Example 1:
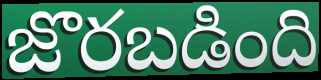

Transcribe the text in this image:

జొరబడింది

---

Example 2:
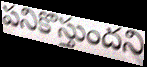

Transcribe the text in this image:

పనికొస్తుందని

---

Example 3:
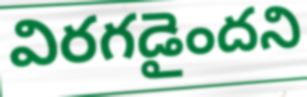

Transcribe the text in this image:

విరగడైందని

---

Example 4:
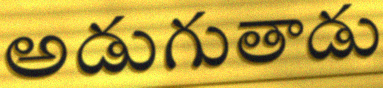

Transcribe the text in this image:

అడుగుతాడు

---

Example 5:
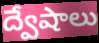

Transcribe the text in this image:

ద్వేషాలు